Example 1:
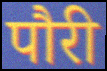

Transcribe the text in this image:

पौरी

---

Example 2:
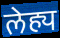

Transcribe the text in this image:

लेह्य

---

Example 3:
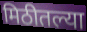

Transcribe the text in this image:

मिठीतल्या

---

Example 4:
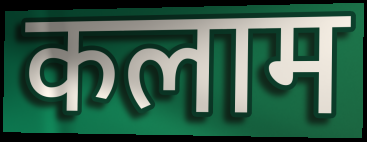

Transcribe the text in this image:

कलाम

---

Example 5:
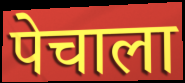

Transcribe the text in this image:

पेचाला